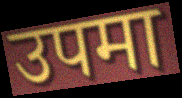
उपमा